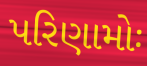
પરિણામોઃ